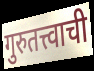
गुरुतत्त्वाची